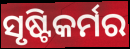
ସୃଷ୍ଟିକର୍ମର